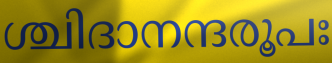
ശ്ചിദാനന്ദരൂപഃ